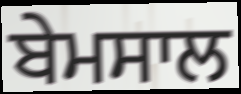
ਬੇਮਸਾਲ